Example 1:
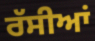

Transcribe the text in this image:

ਰੱਸੀਆਂ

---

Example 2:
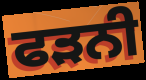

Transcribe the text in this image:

ਫੜਨੀ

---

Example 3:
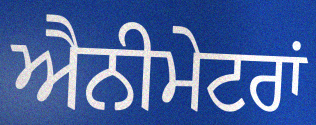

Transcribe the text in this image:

ਐਨੀਮੇਟਰਾਂ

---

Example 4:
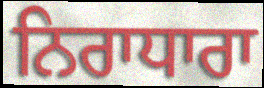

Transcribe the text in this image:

ਨਿਰਾਧਾਰਾ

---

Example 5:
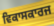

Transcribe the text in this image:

ਵਿਕਾਸਕਾਰਜ